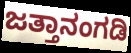
ಜತ್ತಾನಂಗಡಿ